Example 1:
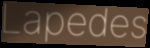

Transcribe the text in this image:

Lapedes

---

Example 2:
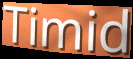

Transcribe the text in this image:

Timid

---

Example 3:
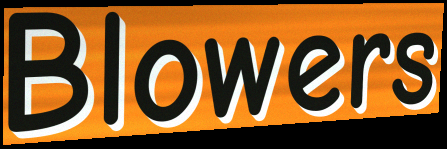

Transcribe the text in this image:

Blowers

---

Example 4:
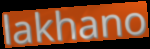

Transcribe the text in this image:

lakhano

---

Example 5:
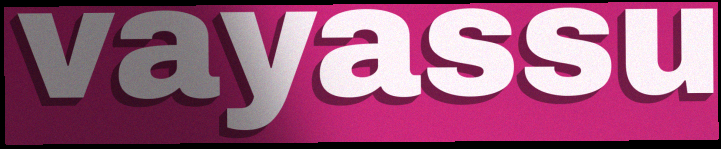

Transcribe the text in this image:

vayassu